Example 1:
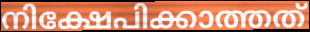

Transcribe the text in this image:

നിക്ഷേപിക്കാത്തത്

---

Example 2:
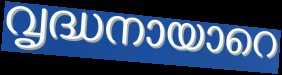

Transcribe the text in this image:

വൃദ്ധനായാറെ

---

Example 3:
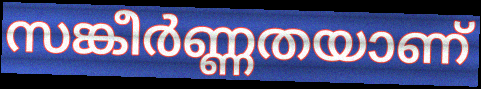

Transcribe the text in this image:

സങ്കീർണ്ണതയാണ്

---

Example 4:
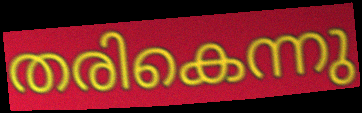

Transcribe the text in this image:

തരികെന്നു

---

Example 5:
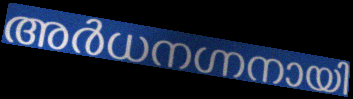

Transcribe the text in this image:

അർധനഗ്നനായി